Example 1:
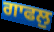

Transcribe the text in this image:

ਗਾਫਲੁ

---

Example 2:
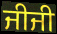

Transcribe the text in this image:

ਜੀਜੀ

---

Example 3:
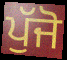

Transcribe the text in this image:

ਪੁੱਜੋ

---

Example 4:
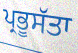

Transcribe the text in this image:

ਪ੍ਰਭੂਸੱਤਾ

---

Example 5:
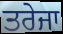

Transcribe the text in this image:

ਤਰੇਜਾ